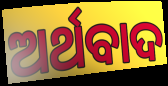
ଅର୍ଥବାଦ